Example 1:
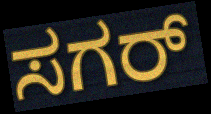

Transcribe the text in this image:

ಸಗರ್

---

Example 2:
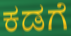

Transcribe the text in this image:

ಕಡಗೆ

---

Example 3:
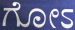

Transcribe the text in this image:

ಗೋಽ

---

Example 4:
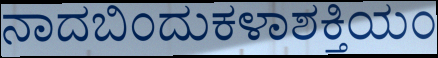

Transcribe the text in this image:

ನಾದಬಿಂದುಕಳಾಶಕ್ತಿಯಂ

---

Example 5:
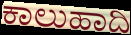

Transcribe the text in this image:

ಕಾಲುಹಾದಿ